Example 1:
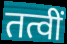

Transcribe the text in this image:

तत्वीं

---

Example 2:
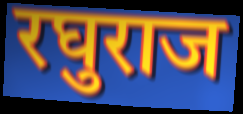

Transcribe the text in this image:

रघुराज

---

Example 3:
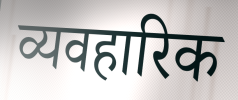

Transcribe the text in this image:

व्यवहारिक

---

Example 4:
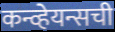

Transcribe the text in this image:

कन्व्हेयन्सची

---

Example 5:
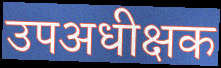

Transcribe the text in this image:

उपअधीक्षक